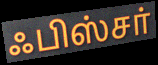
ஃபிஸ்சர்